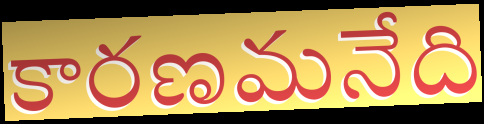
కారణమనేది